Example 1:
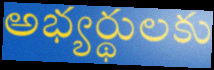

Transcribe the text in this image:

అభ్యర్థులకు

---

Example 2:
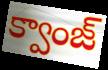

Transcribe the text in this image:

క్వాంజ్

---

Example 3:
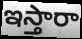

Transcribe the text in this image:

ఇస్తారా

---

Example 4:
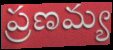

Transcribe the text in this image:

ప్రణమ్య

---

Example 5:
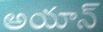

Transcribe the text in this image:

అయాన్